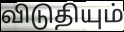
விடுதியும்